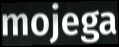
mojega